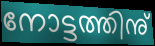
നോട്ടത്തിനു്